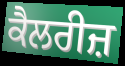
ਕੈਲਰੀਜ਼